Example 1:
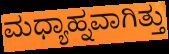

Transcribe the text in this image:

ಮಧ್ಯಾಹ್ನವಾಗಿತ್ತು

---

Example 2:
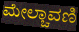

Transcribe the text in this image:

ಮೇಲ್ಚಾವಣಿ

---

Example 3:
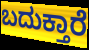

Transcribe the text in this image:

ಬದುಕ್ತಾರೆ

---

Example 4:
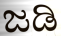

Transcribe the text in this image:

ಜಡಿ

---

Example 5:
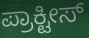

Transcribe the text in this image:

ಪ್ರಾಕ್ಟೀಸ್